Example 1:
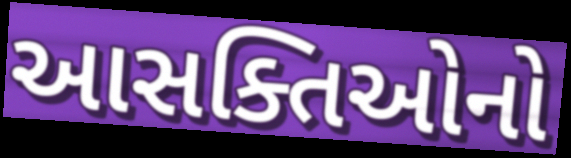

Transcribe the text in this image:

આસક્તિઓનો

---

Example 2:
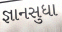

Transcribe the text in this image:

જ્ઞાનસુધા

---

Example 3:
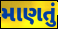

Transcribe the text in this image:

માણતું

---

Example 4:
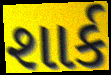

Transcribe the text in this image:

શાર્ક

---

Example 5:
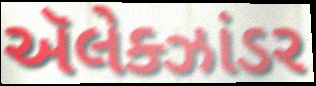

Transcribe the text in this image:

ઍલેક્ઝાંડર